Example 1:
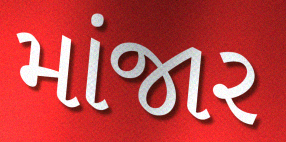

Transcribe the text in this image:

માંજાર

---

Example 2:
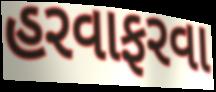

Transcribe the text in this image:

હરવાફરવા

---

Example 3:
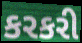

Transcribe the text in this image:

કરકરી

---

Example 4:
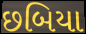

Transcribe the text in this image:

છબિયા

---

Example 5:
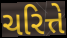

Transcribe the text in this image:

ચરિત્તે